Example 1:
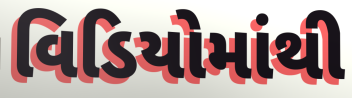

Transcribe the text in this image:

વિડિયોમાંથી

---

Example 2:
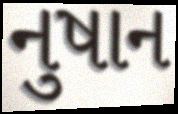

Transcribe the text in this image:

નુષાન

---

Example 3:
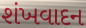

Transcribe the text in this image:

શંખવાદન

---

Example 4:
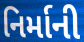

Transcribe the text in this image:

નિર્માની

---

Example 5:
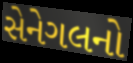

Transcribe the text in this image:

સેનેગલનો